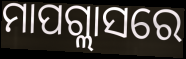
ମାପଗ୍ଲାସରେ